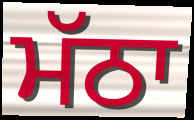
ਮੱਠਾ